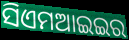
ସିଏମଆଇଇର